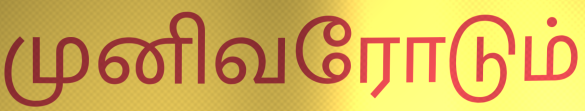
முனிவரோடும்